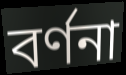
বৰ্ণনা